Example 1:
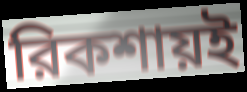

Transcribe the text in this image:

রিকশায়ই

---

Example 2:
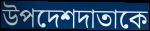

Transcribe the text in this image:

উপদেশদাতাকে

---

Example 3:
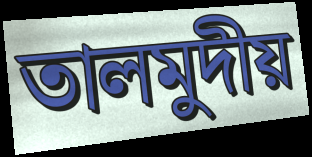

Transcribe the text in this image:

তালমুদীয়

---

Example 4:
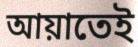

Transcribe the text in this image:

আয়াতেই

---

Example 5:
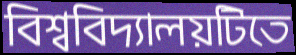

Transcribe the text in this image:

বিশ্ববিদ্যালয়টিতে